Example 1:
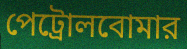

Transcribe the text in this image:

পেট্রোলবোমার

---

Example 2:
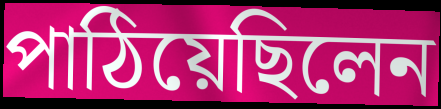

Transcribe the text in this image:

পাঠিয়েছিলেন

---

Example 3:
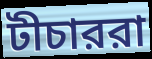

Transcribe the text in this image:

টীচাররা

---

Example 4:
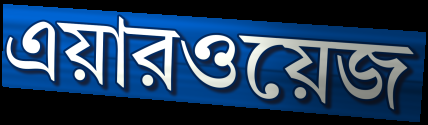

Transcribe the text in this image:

এয়ারওয়েজ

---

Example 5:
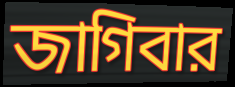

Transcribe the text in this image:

জাগিবার